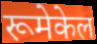
रूमेकेल